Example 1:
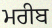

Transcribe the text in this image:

ਮਰੀਬ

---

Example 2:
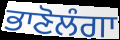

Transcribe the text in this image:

ਭਾਣੋਲੰਗਾ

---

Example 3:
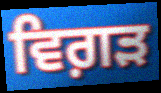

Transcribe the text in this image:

ਵਿਗ਼ੜ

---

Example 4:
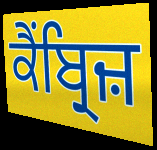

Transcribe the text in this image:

ਕੈਂਬ੍ਰਿਜ਼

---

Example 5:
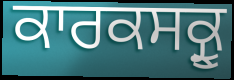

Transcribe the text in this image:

ਕਾਰਕਸਕ੍ਰੂ